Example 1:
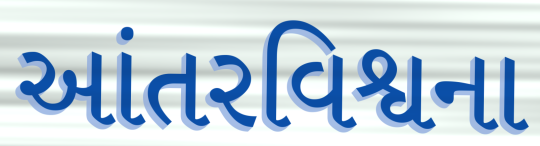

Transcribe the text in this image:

આંતરવિશ્વના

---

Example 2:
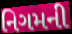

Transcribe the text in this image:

નિગમની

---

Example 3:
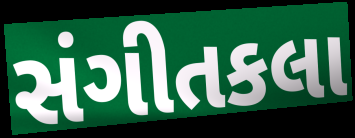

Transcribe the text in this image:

સંગીતકલા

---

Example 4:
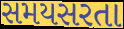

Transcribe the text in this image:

સમયસરતા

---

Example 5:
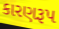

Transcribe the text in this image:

કારણરૂપ